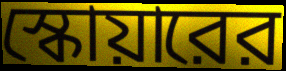
স্কোয়ারের